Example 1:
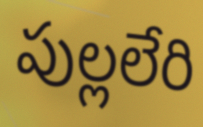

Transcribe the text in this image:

పుల్లలేరి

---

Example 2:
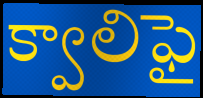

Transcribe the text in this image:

క్వాలిఫై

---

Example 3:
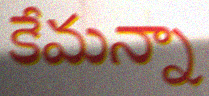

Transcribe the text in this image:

కేమన్నా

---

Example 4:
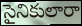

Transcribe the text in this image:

సైనికులారా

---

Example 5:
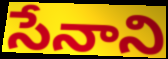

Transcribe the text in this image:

సేనాని